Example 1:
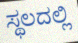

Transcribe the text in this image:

ಸ್ಥಲದಲ್ಲಿ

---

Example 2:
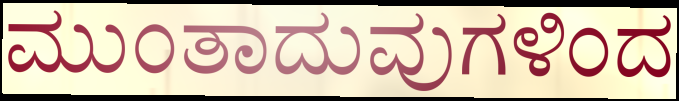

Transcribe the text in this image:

ಮುಂತಾದುವುಗಳಿಂದ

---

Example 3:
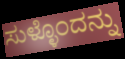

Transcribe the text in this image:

ಸುಳ್ಳೊಂದನ್ನು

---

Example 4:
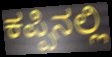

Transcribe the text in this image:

ಕಪ್ಪಿನಲ್ಲಿ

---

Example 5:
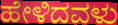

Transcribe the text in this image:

ಹೇಳಿದವಳು